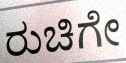
ರುಚಿಗೇ